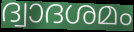
ദ്വാദശമം